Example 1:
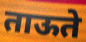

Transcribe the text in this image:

ताऊते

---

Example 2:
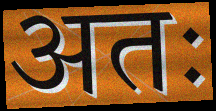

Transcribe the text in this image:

अतः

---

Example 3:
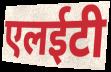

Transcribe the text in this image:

एलईटी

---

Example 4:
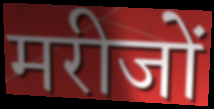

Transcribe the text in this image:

मरीजों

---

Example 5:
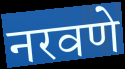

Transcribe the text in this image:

नरवणे